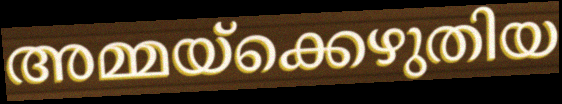
അമ്മയ്ക്കെഴുതിയ